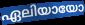
ഏലിയായോ